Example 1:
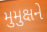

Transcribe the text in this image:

મુમુક્ષને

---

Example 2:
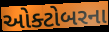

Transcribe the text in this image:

ઓક્ટોબરના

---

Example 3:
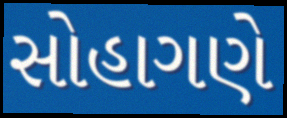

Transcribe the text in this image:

સોહાગણે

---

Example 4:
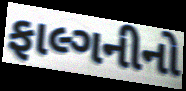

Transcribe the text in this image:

ફાલ્ગનીનો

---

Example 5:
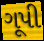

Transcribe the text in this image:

ગૂપી